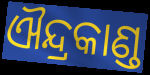
ଐନ୍ଦ୍ରକାଣ୍ଡ